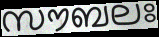
സൗബലഃ